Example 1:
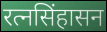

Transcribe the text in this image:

रत्नसिंहासन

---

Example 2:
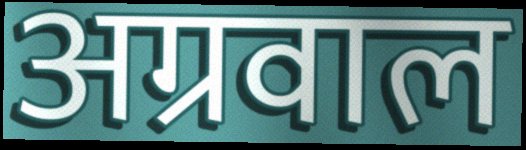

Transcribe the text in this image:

अग्रवाल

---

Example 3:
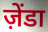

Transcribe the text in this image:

ज़ेंडा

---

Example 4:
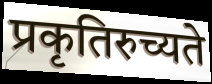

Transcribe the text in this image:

प्रकृतिरुच्यते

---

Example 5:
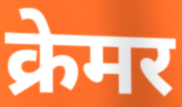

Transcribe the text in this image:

क्रेमर